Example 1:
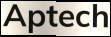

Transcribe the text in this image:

Aptech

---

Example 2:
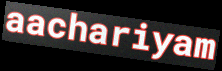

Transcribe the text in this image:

aachariyam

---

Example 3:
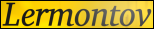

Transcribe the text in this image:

Lermontov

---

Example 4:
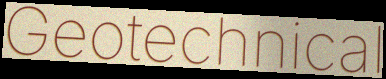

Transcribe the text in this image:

Geotechnical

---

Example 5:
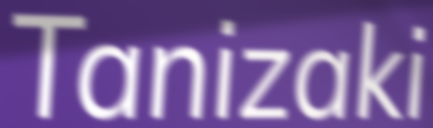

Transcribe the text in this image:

Tanizaki